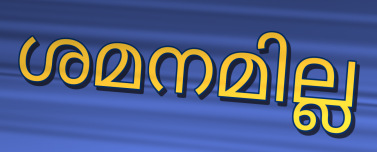
ശമനമില്ല